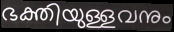
ഭക്തിയുള്ളവനും